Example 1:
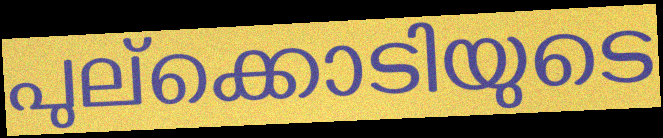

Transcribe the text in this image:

പുല്ക്കൊടിയുടെ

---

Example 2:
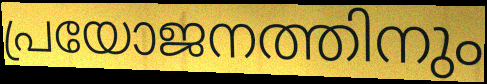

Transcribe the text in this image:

പ്രയോജനത്തിനും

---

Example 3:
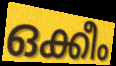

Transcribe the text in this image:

ഒക്കീം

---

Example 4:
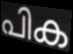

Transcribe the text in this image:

പിക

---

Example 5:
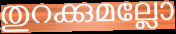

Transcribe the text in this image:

തുറക്കുമല്ലോ